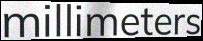
millimeters